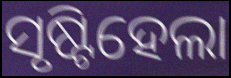
ସୃଷ୍ଟିହେଲା